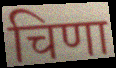
चिणा